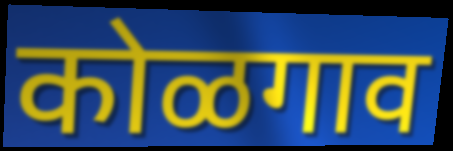
कोळगाव